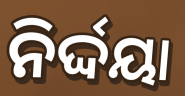
ନିର୍ଦ୍ଦୟା